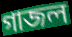
গাজল